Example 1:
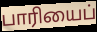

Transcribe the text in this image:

பாரியைப்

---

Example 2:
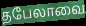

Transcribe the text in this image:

தபேலாவை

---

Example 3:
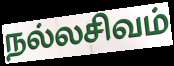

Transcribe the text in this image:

நல்லசிவம்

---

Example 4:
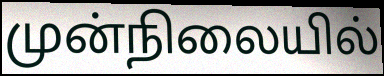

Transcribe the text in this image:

முன்நிலையில்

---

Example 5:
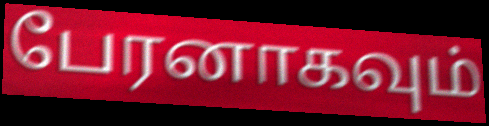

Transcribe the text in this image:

பேரனாகவும்